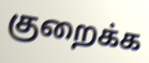
குறைக்க